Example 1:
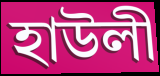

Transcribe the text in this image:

হাউলী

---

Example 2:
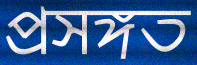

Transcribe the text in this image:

প্ৰসঙ্গত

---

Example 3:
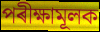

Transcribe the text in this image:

পৰীক্ষামূলক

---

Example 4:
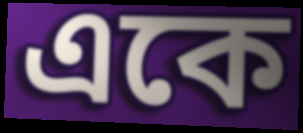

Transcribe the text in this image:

একে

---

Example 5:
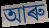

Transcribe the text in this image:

আৰু